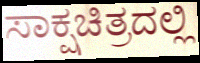
ಸಾಕ್ಷಚಿತ್ರದಲ್ಲಿ